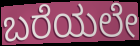
ಬರೆಯಲೇ